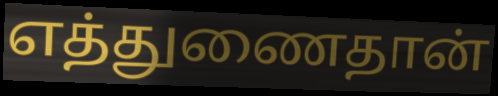
எத்துணைதான்